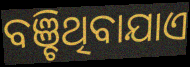
ବଞ୍ଚିଥିବାଯାଏ